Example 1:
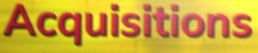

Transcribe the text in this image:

Acquisitions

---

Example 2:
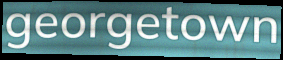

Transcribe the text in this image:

georgetown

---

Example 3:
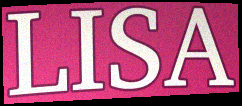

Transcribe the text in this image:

LISA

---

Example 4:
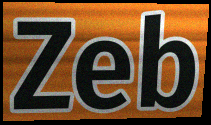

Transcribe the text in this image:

Zeb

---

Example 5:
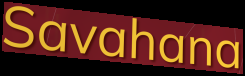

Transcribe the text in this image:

Savahana